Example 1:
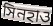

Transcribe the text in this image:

সিনহাও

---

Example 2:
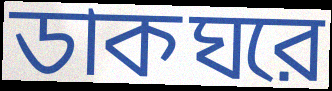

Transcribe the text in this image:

ডাকঘরে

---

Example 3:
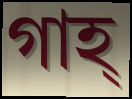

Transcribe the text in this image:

গাহ্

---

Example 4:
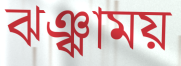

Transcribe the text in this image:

ঝঞ্ঝাময়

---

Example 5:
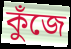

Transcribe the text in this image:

কুঁজে